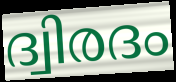
ദ്വിരദം